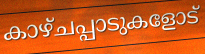
കാഴ്ചപ്പാടുകളോട്